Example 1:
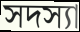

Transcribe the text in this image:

সদস্যা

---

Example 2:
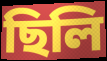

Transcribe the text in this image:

ছিলি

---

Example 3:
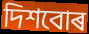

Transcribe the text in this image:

দিশবোৰ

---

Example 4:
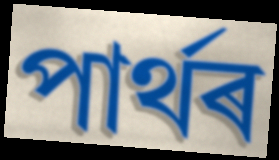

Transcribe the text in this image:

পাৰ্থৰ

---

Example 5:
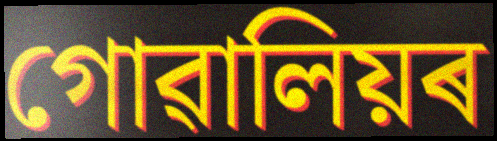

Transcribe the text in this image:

গোৱালিয়ৰ